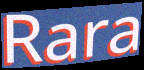
Rara